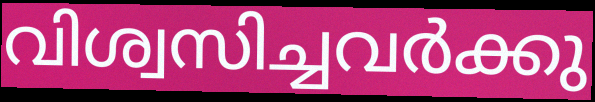
വിശ്വസിച്ചവർക്കു